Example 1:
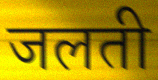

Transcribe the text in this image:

जलती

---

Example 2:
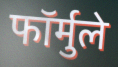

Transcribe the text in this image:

फॉर्मुले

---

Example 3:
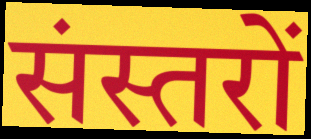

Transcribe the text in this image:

संस्तरों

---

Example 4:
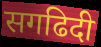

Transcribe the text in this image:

सगढिदी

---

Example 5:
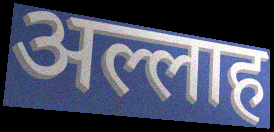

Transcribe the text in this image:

अल्लाह